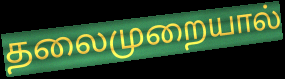
தலைமுறையால்